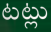
టట్లు